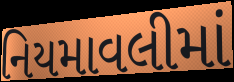
નિયમાવલીમાં